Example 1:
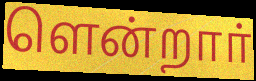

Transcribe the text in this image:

ளென்றார்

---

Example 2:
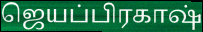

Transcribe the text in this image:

ஜெயப்பிரகாஷ்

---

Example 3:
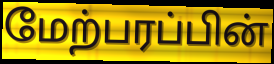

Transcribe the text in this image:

மேற்பரப்பின்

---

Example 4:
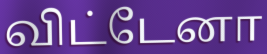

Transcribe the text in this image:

விட்டேனா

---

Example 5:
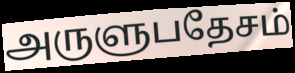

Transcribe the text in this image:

அருளுபதேசம்